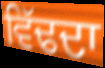
ਵਿੱਢਦਾ